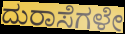
ದುರಾಸೆಗಳೇ